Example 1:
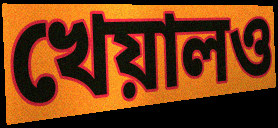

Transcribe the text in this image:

খেয়ালও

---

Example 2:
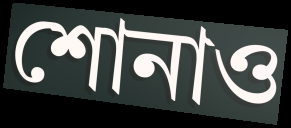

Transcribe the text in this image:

শোনাও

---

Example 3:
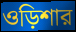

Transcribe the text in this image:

ওড়িশার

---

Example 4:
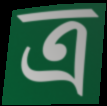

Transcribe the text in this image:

ত্র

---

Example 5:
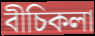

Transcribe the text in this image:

বীচিকলা